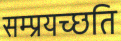
सम्प्रयच्छति